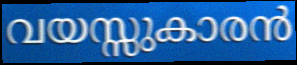
വയസ്സുകാരൻ